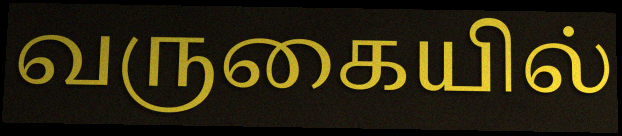
வருகையில்